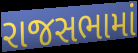
રાજસભામાં